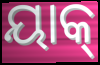
ୟାକ୍